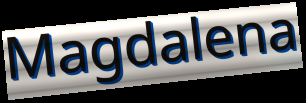
Magdalena